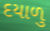
દયાળુ